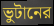
ভুটানের